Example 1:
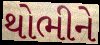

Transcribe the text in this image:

થોભીને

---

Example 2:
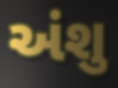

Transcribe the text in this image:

અંશુ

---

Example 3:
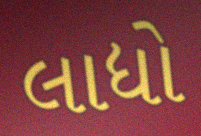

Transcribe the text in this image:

લાદ્યો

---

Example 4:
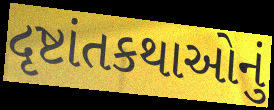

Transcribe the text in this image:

દૃષ્ટાંતકથાઓનું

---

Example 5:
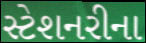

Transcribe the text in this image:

સ્ટેશનરીના